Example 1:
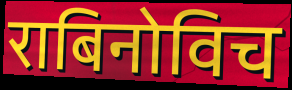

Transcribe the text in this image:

राबिनोविच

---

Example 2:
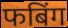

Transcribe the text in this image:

फबिंग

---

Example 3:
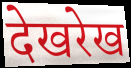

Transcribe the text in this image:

देखरेख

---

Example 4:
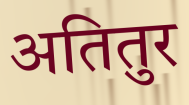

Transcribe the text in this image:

अतितुर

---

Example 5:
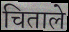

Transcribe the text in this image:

चिताले